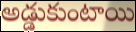
అడ్డుకుంటాయి